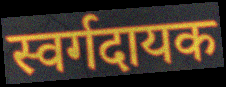
स्वर्गदायक